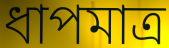
ধাপমাত্র